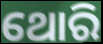
ଥୋରି